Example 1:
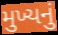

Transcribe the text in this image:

મુખ્યનું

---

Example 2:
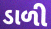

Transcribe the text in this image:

ડાળી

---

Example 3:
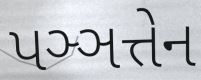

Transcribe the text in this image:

પઞ્ઞત્તેન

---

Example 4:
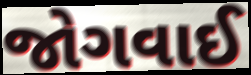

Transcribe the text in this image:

જોગવાઈ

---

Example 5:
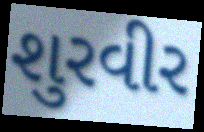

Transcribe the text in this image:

શુરવીર